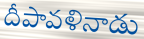
దీపావళినాడు